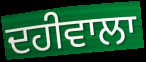
ਦਹੀਵਾਲਾ